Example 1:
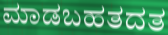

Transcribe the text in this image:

ಮಾಡಬಹತದತ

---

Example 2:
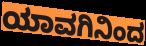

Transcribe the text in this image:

ಯಾವಗಿನಿಂದ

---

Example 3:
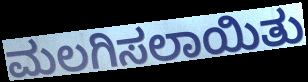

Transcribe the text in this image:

ಮಲಗಿಸಲಾಯಿತು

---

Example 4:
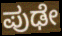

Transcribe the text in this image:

ಪುಢೇ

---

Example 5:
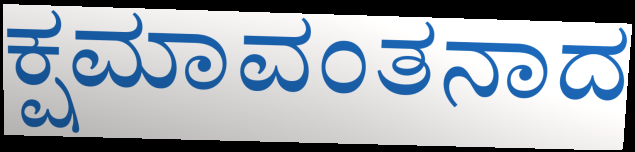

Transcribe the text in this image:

ಕ್ಷಮಾವಂತನಾದ